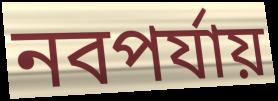
নবপর্যায়